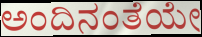
ಅಂದಿನಂತೆಯೇ